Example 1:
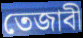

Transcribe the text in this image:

তেজাবী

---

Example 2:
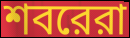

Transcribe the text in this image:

শবরেরা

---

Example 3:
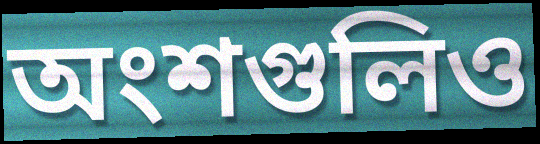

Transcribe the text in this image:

অংশগুলিও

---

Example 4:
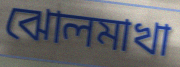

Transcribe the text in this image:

ঝোলমাখা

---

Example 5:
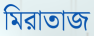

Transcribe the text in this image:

মিরাতাজ